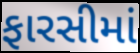
ફારસીમાં